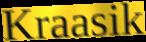
Kraasik